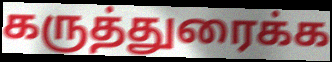
கருத்துரைக்க